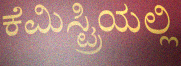
ಕೆಮಿಸ್ಟ್ರಿಯಲ್ಲಿ